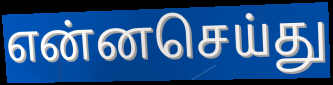
என்னசெய்து